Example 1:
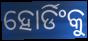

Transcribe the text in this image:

ହୋର୍ଡିଂକୁ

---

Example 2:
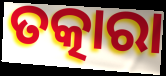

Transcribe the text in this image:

ତତ୍କାରା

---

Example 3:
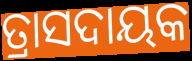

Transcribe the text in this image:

ତ୍ରାସଦାୟକ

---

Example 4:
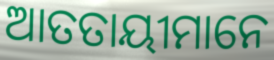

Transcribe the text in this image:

ଆତତାୟୀମାନେ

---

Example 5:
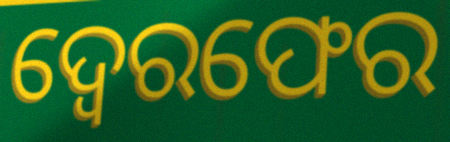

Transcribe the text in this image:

ଦ୍ବେରଫେର